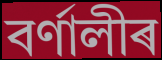
বৰ্ণালীৰ